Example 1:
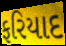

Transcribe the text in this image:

ફરિયાદ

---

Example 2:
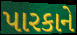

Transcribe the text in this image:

પારકાને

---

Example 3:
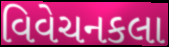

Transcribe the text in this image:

વિવેચનકલા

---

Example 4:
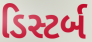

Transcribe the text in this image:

ડિસ્ટર્બ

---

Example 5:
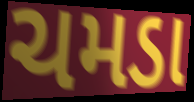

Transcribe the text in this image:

ચમડા